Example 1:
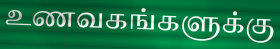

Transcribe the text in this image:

உணவகங்களுக்கு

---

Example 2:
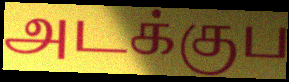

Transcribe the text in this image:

அடக்குப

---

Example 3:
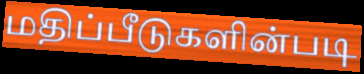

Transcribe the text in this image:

மதிப்பீடுகளின்படி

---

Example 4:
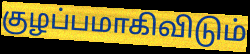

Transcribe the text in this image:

குழப்பமாகிவிடும்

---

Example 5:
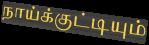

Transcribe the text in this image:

நாய்க்குட்டியும்